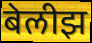
बेलीझ